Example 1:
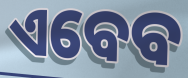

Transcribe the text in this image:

ଏବେବ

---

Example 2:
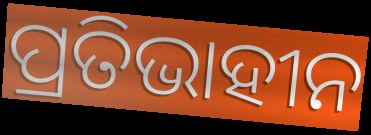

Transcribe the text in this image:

ପ୍ରତିଭାହୀନ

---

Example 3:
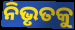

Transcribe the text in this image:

ନିଭୃତକୁ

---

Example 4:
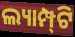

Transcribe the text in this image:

ଲ୍ୟାମ୍ପ୍‍ଟି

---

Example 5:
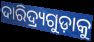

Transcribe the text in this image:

ଦାରିଦ୍ର୍ୟଗୁଡ଼ାକୁ